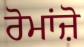
ਰੋਮਾਂਜ਼ੋ